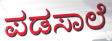
ಪಡಸಾಲೆ